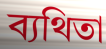
ব্যথিতা